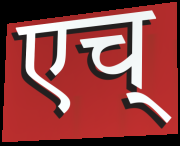
एच्